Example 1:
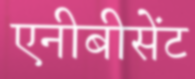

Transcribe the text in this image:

एनीबीसेंट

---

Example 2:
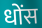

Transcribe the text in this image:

धोंस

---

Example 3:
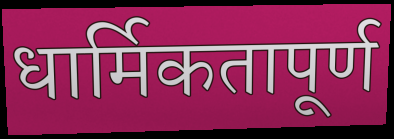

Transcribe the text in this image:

धार्मिकतापूर्ण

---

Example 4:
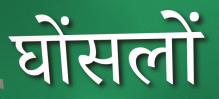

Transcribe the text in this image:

घोंसलों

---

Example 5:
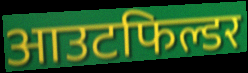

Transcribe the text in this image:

आउटफिल्डर